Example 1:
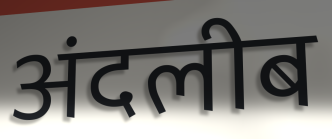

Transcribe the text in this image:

अंदलीब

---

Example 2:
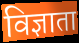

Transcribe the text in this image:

विज्ञाता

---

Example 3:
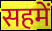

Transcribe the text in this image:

सहमें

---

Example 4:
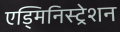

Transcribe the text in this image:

एड्मिनिस्ट्रेशन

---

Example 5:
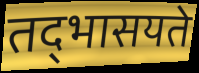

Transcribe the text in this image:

तद्भासयते